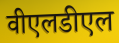
वीएलडीएल